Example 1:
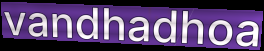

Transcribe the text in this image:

vandhadhoa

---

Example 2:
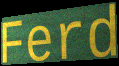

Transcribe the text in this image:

Ferd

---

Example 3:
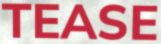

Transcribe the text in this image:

TEASE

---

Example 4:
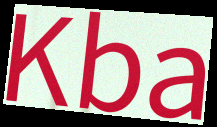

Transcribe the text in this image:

Kba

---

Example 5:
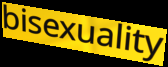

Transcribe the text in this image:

bisexuality